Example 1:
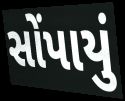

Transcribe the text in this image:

સોંપાયું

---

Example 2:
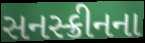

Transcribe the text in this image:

સનસ્ક્રીનના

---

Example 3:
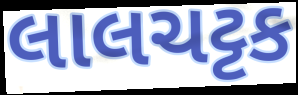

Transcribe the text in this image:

લાલચટ્ટક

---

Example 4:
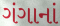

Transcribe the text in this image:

ગંગાનાં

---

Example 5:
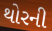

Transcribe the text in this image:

થોરની